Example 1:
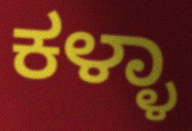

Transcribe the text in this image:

ಕಳ್ಳಾ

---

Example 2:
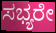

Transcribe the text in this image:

ಸಭ್ಯರೇ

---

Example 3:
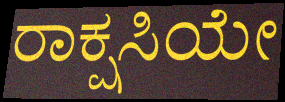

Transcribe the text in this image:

ರಾಕ್ಷಸಿಯೇ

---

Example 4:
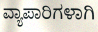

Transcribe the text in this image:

ವ್ಯಾಪಾರಿಗಳಾಗಿ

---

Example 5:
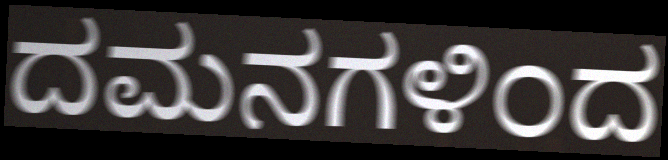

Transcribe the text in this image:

ದಮನಗಳಿಂದ